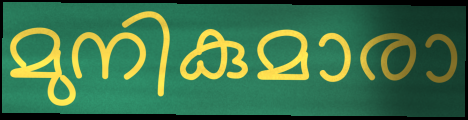
മുനികുമാരാ